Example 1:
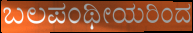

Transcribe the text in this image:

ಬಲಪಂಥೀಯರಿಂದ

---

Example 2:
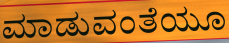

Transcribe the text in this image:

ಮಾಡುವಂತೆಯೂ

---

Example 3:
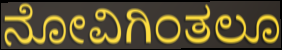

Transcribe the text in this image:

ನೋವಿಗಿಂತಲೂ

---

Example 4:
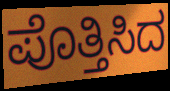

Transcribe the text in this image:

ಪೊತ್ತಿಸಿದ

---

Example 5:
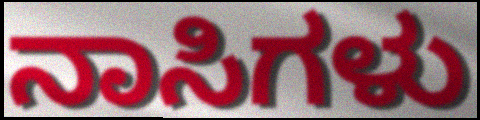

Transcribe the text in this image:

ನಾಸಿಗಳು